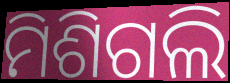
ମିଶିଗଲି